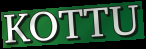
KOTTU